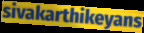
sivakarthikeyans